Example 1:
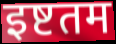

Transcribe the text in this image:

इष्टतम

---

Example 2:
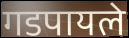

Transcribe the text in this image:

गडपायले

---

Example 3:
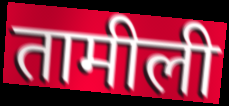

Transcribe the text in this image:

तामीली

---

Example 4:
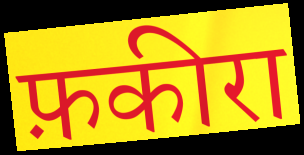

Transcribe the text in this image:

फ़कीरा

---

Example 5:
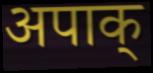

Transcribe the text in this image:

अपाक्